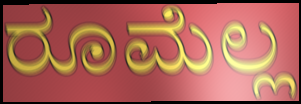
ರೂಮೆಲ್ಲ